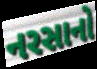
નરસાનો